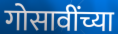
गोसावींच्या